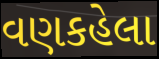
વણકહેલા